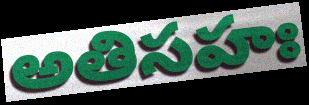
అతిసహః